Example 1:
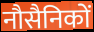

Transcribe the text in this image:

नौसैनिकों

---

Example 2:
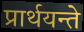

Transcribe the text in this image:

प्रार्थयन्ते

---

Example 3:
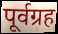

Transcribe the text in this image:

पूर्वग्रह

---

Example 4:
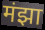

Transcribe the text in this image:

मंझा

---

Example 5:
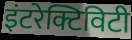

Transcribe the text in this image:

इंटरेक्टिविटी